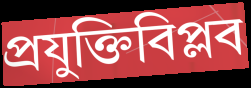
প্রযুক্তিবিপ্লব